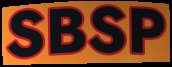
SBSP